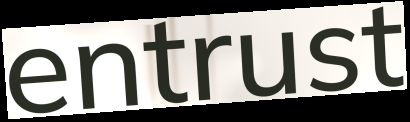
entrust